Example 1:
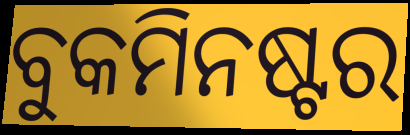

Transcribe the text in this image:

ବୁକମିନଷ୍ଟର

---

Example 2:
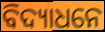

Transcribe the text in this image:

ବିଦ୍ୟାଧନେ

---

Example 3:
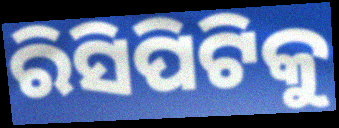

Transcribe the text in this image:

ରିସିପିଟିକୁ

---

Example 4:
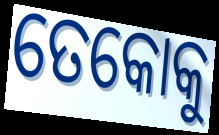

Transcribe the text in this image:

ତେକୋକୁ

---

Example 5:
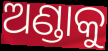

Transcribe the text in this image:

ଅଣ୍ଡାକୁ